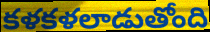
కళకళలాడుతోంది